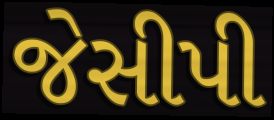
જેસીપી